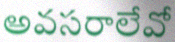
అవసరాలేవో